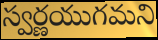
స్వర్ణయుగమని